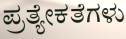
ಪ್ರತ್ಯೇಕತೆಗಳು